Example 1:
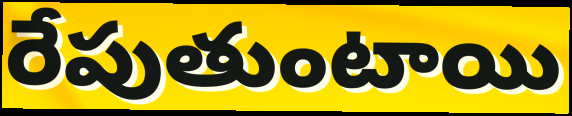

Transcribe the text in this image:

రేపుతుంటాయి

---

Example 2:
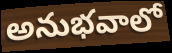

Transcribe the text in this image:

అనుభవాలో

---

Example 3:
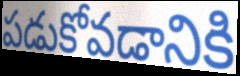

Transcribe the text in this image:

పడుకోవడానికి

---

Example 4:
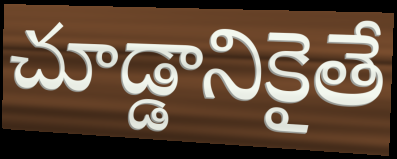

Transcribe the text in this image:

చూడ్డానికైతే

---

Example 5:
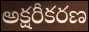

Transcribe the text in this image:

అక్షరీకరణ